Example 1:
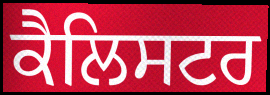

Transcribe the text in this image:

ਕੈਲਿਸਟਰ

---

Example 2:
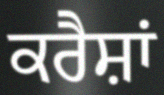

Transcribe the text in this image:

ਕਰੈਸ਼ਾਂ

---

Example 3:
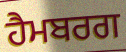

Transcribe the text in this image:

ਹੈਮਬਰਗ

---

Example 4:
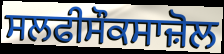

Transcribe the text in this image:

ਸਲਫੀਸੌਕਸਾਜ਼ੋਲ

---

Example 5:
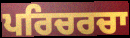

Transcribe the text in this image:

ਪਰਿਚਰਚਾ